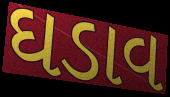
ઘડાવ